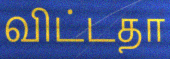
விட்டதா